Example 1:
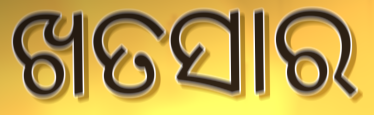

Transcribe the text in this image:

ଖତସାର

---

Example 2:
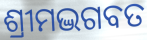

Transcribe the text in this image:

ଶ୍ରୀମଦ୍ଭଗବତ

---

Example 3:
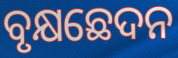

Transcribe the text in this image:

ବୃକ୍ଷଛେଦନ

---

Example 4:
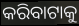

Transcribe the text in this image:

କରିବାଟାକୁ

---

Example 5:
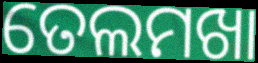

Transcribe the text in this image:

ତେଲମଖା